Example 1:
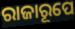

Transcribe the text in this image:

ରାଜାରୂପେ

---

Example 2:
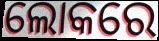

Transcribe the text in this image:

ଲୋକରେ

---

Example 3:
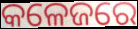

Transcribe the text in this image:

କଳେଜରେ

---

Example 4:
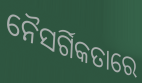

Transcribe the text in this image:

ନୈସର୍ଗିକତାରେ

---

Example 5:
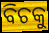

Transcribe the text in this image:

ବିଚକୁ